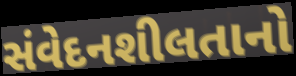
સંવેદનશીલતાનો